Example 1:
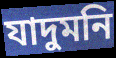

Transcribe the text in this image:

যাদুমনি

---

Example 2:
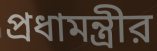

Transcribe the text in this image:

প্রধামন্ত্রীর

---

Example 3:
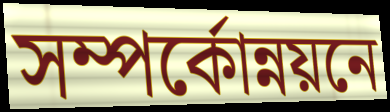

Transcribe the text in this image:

সম্পর্কোন্নয়নে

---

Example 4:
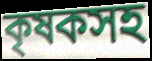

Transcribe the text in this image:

কৃষকসহ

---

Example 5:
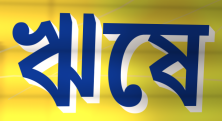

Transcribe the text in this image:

ঋষে